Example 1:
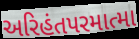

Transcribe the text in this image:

અરિહંતપરમાત્મા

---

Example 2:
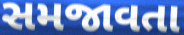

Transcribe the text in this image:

સમજાવતા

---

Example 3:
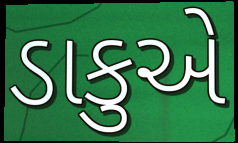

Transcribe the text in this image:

ડાકુએ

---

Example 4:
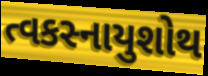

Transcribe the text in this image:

ત્વકસ્નાયુશોથ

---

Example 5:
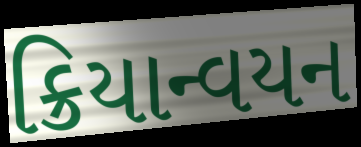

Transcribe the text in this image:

ક્રિયાન્વયન